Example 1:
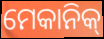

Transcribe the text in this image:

ମେକାନିକ୍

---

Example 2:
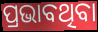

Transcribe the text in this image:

ପ୍ରଭାବଥିବା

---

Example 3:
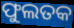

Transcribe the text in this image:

ଫୁଲତକ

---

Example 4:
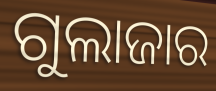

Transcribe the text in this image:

ଗୁଲାଜାର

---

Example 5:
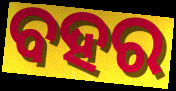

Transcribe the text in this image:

ବହର